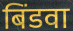
बिंडवा